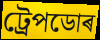
ট্ৰেপডোৰ